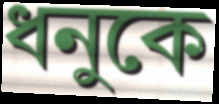
ধনুকে